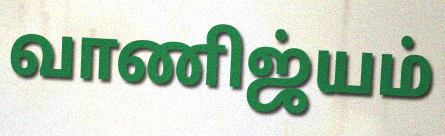
வாணிஜ்யம்